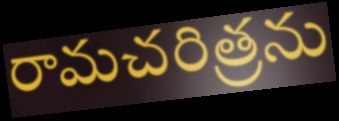
రామచరిత్రను